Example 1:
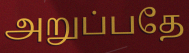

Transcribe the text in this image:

அறுப்பதே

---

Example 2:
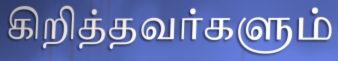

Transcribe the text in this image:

கிறித்தவர்களும்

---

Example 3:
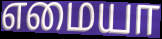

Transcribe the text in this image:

எமையா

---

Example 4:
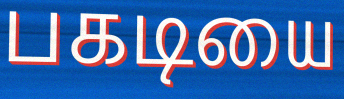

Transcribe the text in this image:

பகடியை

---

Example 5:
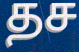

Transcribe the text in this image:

தச